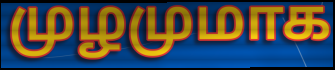
முழமுமாக